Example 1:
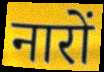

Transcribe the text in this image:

नारों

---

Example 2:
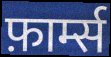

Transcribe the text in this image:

फ़ार्म्स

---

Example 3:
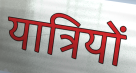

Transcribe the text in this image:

यात्रियों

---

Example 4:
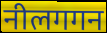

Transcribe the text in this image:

नीलगगन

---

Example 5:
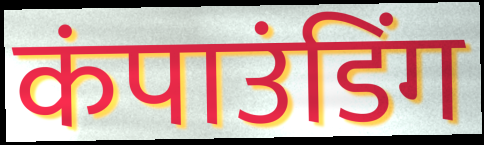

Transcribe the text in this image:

कंपाउंडिंग